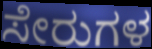
ಸೇರುಗಳ